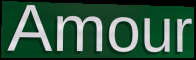
Amour